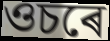
ওচৰে